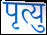
पृत्यु